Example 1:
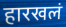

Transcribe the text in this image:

हारखलं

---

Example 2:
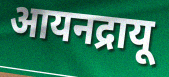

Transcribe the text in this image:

आयनद्रायू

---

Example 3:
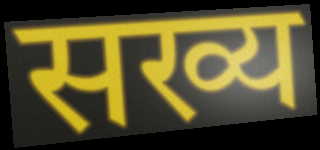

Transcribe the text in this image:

सख्य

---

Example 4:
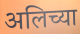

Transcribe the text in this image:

अलिच्या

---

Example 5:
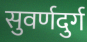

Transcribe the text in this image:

सुवर्णदुर्ग